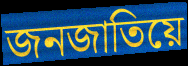
জনজাতিয়ে